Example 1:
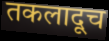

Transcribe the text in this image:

तकलादूच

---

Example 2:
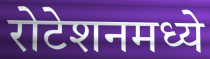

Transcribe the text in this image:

रोटेशनमध्ये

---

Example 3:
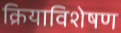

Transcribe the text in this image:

क्रियाविशेषण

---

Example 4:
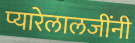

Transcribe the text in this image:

प्यारेलालजींनी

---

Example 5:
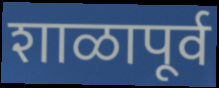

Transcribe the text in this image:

शाळापूर्व